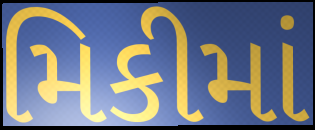
મિકીમાં